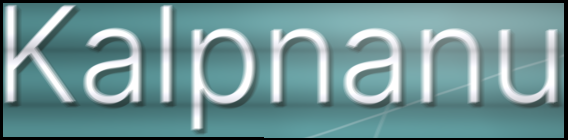
Kalpnanu